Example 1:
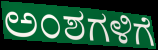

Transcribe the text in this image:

ಅಂಶಗಳಿಗೆ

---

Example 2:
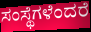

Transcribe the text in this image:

ಸಂಸ್ಥೆಗಳೆಂದರೆ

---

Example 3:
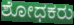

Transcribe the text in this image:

ಶೋಧಕರು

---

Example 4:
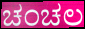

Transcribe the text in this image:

ಚಂಚಲ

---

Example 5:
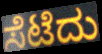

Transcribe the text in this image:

ಸೆಟೆದು